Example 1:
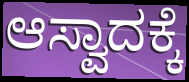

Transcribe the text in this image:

ಆಸ್ವಾದಕ್ಕೆ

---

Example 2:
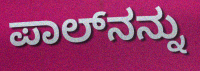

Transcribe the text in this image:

ಪಾಲ್‍ನನ್ನು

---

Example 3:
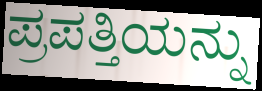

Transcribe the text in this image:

ಪ್ರಪತ್ತಿಯನ್ನು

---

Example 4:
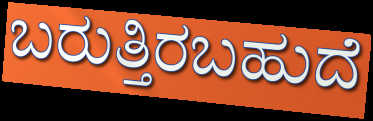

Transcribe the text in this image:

ಬರುತ್ತಿರಬಹುದೆ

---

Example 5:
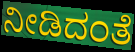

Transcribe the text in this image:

ನೀಡಿದಂತೆ